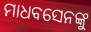
ମାଧବସେନଙ୍କୁ